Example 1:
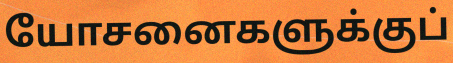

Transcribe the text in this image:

யோசனைகளுக்குப்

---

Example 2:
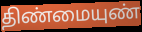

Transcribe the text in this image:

திண்மையுண்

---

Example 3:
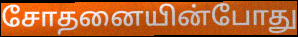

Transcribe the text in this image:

சோதனையின்போது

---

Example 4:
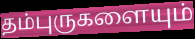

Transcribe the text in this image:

தம்புருகளையும்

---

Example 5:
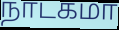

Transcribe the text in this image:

நாடகமா